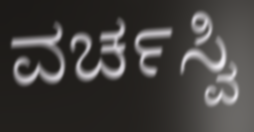
ವರ್ಚಸ್ವಿ